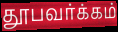
தூபவர்க்கம்